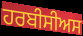
ਹਰਬੀਸੀਅਸ